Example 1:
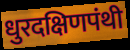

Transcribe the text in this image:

धुरदक्षिणपंथी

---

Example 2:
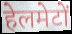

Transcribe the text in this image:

हेलमेटों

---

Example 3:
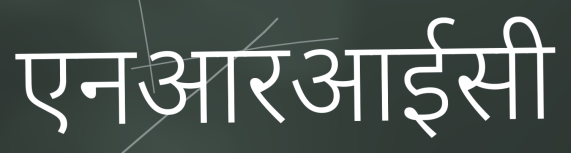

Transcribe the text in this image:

एनआरआईसी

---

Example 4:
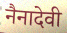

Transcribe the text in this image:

नैनादेवी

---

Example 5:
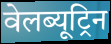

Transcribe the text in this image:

वेलब्यूट्रिन